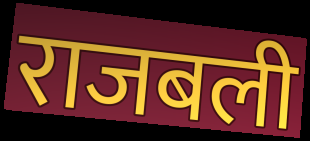
राजबली